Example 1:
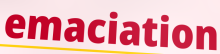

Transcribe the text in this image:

emaciation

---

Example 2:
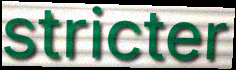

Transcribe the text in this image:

stricter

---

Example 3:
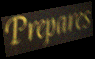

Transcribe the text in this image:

Prepares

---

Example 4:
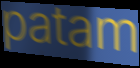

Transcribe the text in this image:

patam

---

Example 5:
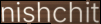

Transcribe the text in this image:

nishchit